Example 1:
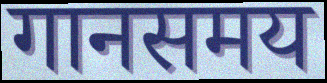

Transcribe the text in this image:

गानसमय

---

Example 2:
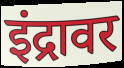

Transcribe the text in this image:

इंद्रावर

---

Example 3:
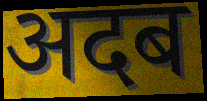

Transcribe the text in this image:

अदब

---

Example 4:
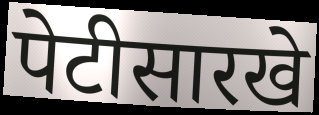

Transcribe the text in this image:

पेटीसारखे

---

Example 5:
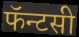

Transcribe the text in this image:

फॅन्टसी